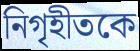
নিগৃহীতকে